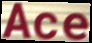
Ace